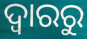
ଦ୍ଵାରରୁ